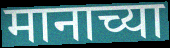
मानाच्या